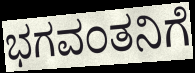
ಭಗವಂತನಿಗೆ